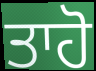
ਤਾਹੋ